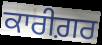
ਕਾਰੀਗ਼ਰ